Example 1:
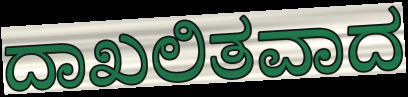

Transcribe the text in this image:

ದಾಖಲಿತವಾದ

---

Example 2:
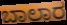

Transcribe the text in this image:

ಬಾಲಾರ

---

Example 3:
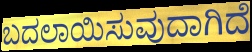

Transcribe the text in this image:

ಬದಲಾಯಿಸುವುದಾಗಿದೆ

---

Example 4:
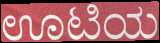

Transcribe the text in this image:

ಊಟಿಯ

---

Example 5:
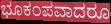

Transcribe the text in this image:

ಭೂಕಂಪವಾದರೂ